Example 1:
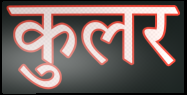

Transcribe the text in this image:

कुलर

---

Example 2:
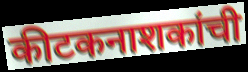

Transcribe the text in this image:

कीटकनाशकांची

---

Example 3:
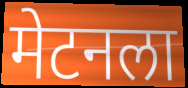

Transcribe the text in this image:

मेटनला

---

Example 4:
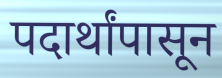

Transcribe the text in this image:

पदार्थांपासून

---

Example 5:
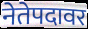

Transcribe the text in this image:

नेतेपदावर